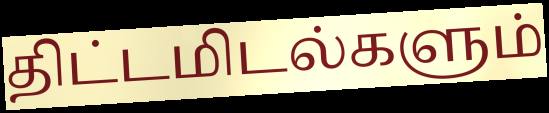
திட்டமிடல்களும்